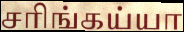
சரிங்கய்யா